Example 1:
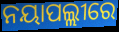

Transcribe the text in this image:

ନୟାପଲ୍ଲୀରେ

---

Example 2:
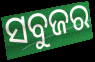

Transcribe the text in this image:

ସବୁଜର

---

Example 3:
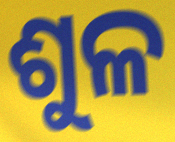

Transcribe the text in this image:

ଶୁଳ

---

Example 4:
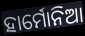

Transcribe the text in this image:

ହାର୍ମୋନିଆ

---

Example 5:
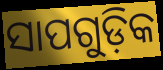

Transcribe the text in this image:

ସାପଗୁଡ଼ିକ